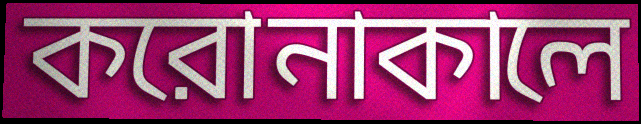
করোনাকালে